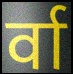
र्वा